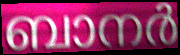
ബാനർ